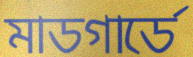
মাডগার্ডে